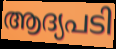
ആദ്യപടി